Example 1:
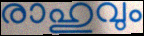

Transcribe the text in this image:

രാഹുവും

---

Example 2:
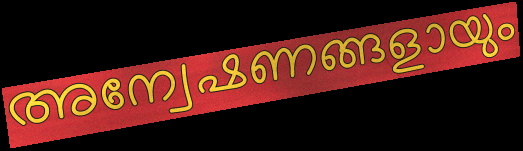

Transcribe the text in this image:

അന്വേഷണങ്ങളായും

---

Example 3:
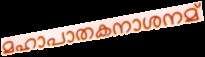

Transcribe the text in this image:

മഹാപാതകനാശനമ്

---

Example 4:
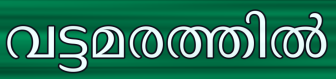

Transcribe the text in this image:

വട്ടമരത്തിൽ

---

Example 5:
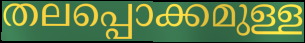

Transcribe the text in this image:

തലപ്പൊക്കമുള്ള